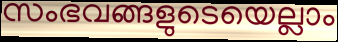
സംഭവങ്ങളുടെയെല്ലാം